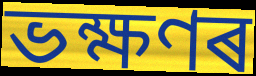
ভক্ষণৰ